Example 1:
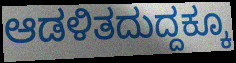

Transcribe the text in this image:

ಆಡಳಿತದುದ್ದಕ್ಕೂ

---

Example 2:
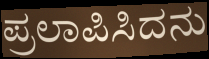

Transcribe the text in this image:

ಪ್ರಲಾಪಿಸಿದನು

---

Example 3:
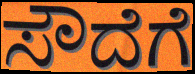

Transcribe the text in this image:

ಸೌದೆಗೆ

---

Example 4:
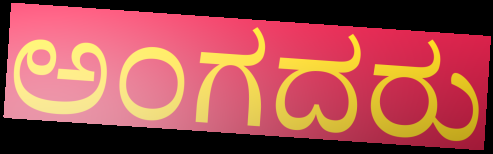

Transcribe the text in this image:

ಅಂಗದರು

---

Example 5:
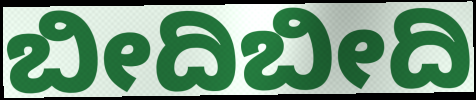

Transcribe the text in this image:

ಬೀದಿಬೀದಿ